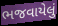
ભજવાયેલું